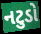
નટુડો